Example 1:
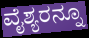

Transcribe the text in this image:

ವೈಶ್ಯರನ್ನೂ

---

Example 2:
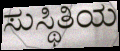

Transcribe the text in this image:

ಸುಸ್ಥಿತಿಯ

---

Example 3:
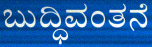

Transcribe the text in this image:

ಬುದ್ಧಿವಂತನೆ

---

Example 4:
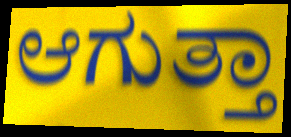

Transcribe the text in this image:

ಆಗುತ್ತಾ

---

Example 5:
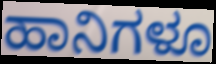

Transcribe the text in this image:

ಹಾನಿಗಳೂ